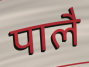
पालै